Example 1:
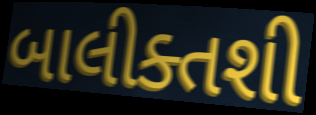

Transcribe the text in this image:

બાલીક્તશી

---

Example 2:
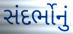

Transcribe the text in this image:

સંદર્ભોનું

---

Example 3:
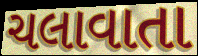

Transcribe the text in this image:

ચલાવાતા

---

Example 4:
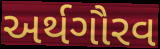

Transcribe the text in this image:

અર્થગૌરવ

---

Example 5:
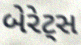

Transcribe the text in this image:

બેરેટ્સ